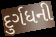
દુર્ગધની